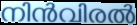
നിൻവിരൽ